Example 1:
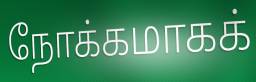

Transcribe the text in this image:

நோக்கமாகக்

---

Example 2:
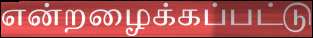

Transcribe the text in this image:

என்றழைக்கப்பட்டு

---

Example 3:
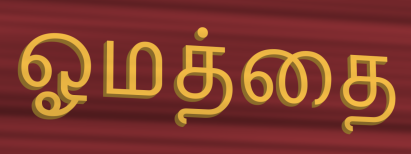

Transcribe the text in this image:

ஓமத்தை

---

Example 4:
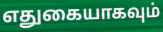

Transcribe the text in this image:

எதுகையாகவும்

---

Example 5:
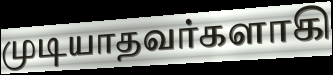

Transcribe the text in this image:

முடியாதவர்களாகி